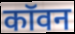
कॉवन